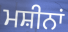
ਮਸ਼ੀਨਾਂ